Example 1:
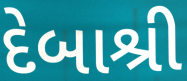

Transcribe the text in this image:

દેબાશ્રી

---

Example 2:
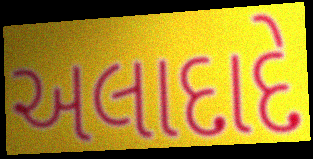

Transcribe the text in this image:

અલાદાદે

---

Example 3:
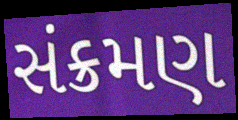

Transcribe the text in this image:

સંક્રમણ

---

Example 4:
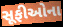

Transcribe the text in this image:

સૂફીઓના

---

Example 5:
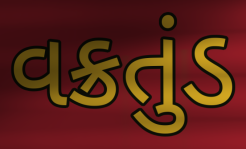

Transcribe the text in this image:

વક્રતુંડ